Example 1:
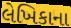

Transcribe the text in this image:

લેખિકાના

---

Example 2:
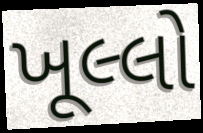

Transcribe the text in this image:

ખૂલ્લો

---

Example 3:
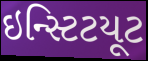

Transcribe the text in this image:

ઇન્સ્ટિટયૂટ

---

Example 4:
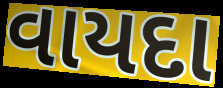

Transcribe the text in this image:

વાયદા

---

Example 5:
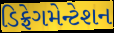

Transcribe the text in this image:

ડિફ્રેગમેન્ટેશન